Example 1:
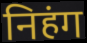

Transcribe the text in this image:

निहंग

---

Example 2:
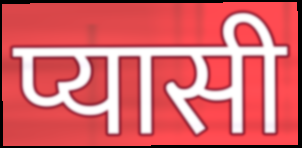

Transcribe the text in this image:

प्यासी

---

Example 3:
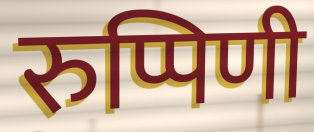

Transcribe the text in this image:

रुप्पिणी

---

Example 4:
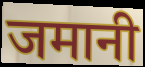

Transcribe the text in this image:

जमानी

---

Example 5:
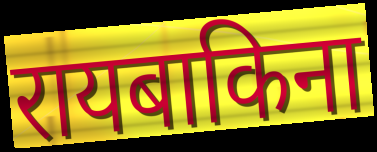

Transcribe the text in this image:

रायबाकिना